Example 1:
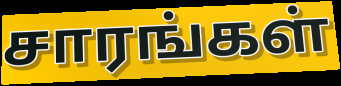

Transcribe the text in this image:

சாரங்கள்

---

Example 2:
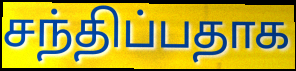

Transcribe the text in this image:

சந்திப்பதாக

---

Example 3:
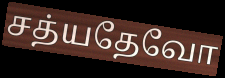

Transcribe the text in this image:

சத்யதேவோ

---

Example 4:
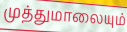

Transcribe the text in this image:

முத்துமாலையும்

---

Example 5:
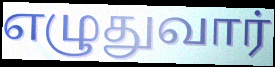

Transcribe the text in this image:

எழுதுவார்